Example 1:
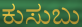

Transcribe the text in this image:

ಕುಸುಬು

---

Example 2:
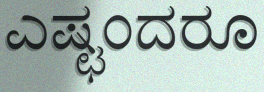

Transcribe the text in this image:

ಎಷ್ಟಂದರೂ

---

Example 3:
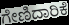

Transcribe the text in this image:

ಗೇಣಿದಾರಿಕೆ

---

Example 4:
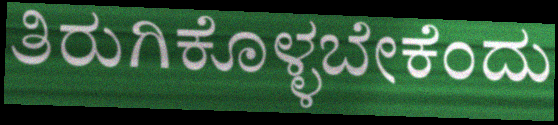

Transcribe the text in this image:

ತಿರುಗಿಕೊಳ್ಳಬೇಕೆಂದು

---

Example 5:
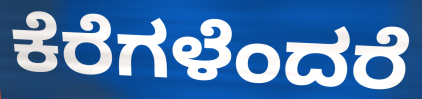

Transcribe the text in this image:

ಕೆರೆಗಳೆಂದರೆ